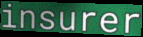
insurer